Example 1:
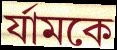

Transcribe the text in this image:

র্যামকে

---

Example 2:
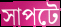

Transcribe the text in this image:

সাপটে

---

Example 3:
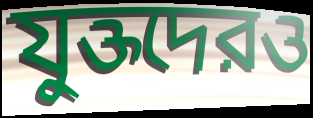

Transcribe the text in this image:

যুক্তদেরও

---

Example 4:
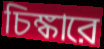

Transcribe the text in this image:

চিঙ্কারে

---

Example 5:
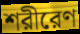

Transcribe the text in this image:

শরীরেণ